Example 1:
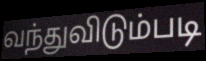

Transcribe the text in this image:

வந்துவிடும்படி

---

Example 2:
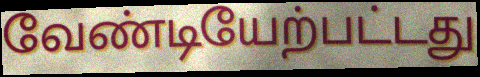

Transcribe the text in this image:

வேண்டியேற்பட்டது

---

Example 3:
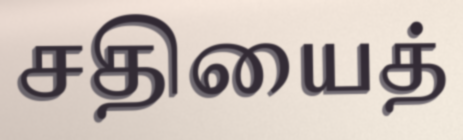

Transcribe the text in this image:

சதியைத்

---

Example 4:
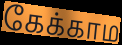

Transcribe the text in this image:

கேக்காம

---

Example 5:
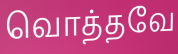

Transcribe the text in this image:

வொத்தவே